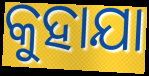
କୁହାଯା